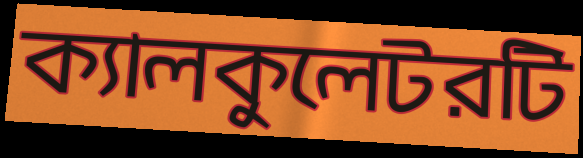
ক্যালকুলেটরটি